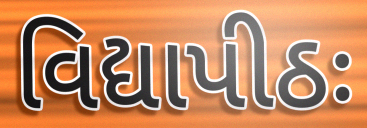
વિદ્યાપીઠઃ